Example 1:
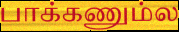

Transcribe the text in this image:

பாக்கணும்ல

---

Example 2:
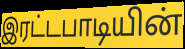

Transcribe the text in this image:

இரட்டபாடியின்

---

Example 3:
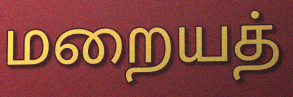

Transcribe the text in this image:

மறையத்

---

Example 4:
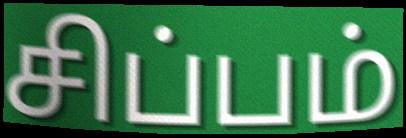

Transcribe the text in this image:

சிப்பம்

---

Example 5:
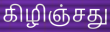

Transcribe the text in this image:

கிழிஞ்சது